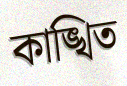
কাঙ্খিত